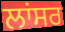
ਲਾਂਸਰ